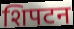
शिपटन